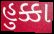
હુક્કા